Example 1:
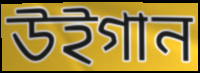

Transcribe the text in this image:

উইগান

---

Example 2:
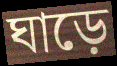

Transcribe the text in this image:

ঘাড়ে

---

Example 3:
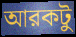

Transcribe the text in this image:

আরকটু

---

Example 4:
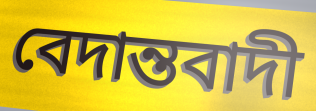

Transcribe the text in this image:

বেদান্তবাদী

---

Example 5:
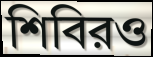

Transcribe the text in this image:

শিবিরও